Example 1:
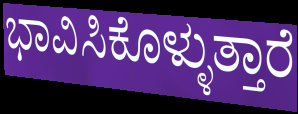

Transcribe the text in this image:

ಭಾವಿಸಿಕೊಳ್ಳುತ್ತಾರೆ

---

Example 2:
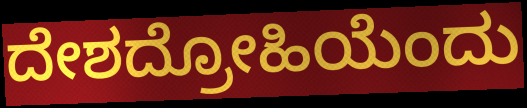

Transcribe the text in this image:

ದೇಶದ್ರೋಹಿಯೆಂದು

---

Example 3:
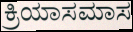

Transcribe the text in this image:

ಕ್ರಿಯಾಸಮಾಸ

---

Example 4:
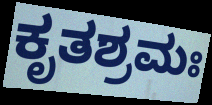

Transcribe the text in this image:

ಕೃತಶ್ರಮಃ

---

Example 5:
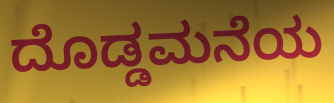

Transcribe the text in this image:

ದೊಡ್ಡಮನೆಯ